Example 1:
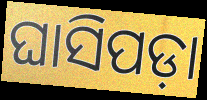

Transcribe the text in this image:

ଘାସିପଡ଼ା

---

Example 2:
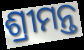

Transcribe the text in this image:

ଶ୍ରୀମନ୍ତ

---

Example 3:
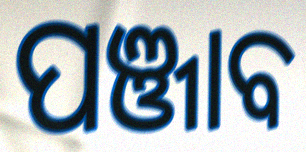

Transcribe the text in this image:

ପଞ୍ଜାବ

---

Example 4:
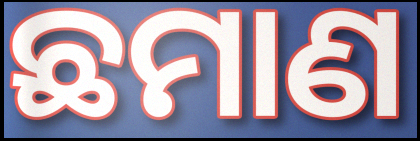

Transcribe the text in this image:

ଛମାଣ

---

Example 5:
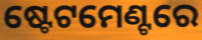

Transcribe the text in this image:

ଷ୍ଟେଟମେଣ୍ଟରେ